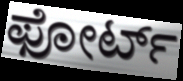
ಫೋರ್ಟ್